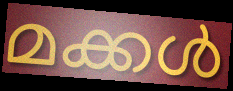
മക്കൾ